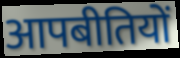
आपबीतियों